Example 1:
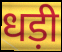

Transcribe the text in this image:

धड़ी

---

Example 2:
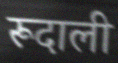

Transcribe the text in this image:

रूदाली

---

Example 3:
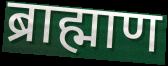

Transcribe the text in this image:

ब्राह्माण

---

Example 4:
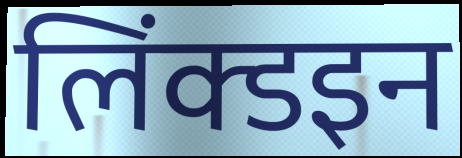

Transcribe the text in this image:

लिंक्‍डइन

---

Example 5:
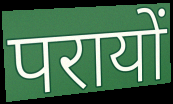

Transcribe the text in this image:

परायों